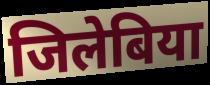
जिलेबिया